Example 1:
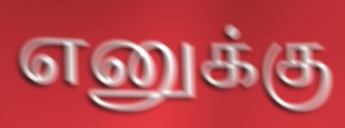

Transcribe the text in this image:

எனுக்கு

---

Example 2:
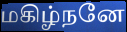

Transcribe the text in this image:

மகிழ்நனே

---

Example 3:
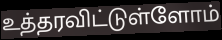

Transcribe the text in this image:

உத்தரவிட்டுள்ளோம்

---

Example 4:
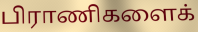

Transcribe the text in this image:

பிராணிகளைக்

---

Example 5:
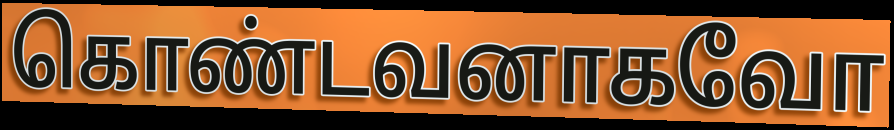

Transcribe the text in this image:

கொண்டவனாகவோ